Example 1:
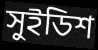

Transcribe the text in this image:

সুইডিশ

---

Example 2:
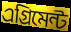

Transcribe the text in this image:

এগ্রিমেন্ট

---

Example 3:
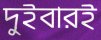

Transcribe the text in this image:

দুইবারই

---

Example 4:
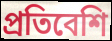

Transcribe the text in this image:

প্রতিবেশি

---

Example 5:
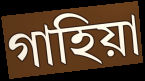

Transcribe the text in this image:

গাহিয়া